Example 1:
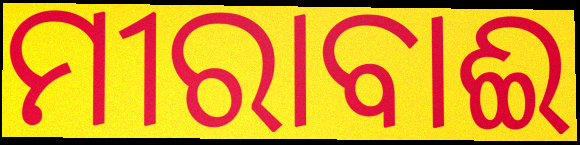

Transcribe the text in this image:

ମୀରାବାଈ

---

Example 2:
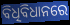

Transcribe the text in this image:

ବିଧିବିଧାନରେ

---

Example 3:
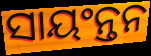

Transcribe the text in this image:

ସାୟଂନ୍ତନ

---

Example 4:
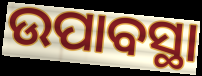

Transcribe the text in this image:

ଉପାବସ୍ଥା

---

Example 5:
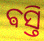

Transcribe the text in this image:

ଵସ୍ତି